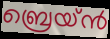
ബ്രെയ്ൻ